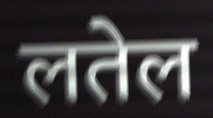
लतेल